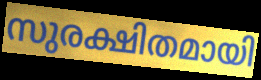
സുരക്ഷിതമായി